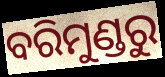
ବରିମୁଣ୍ଡରୁ